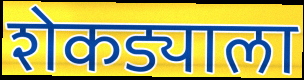
शेकड्याला